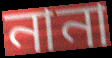
নানা